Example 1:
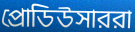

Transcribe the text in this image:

প্রোডিউসাররা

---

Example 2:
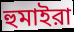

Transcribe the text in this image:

হুমাইরা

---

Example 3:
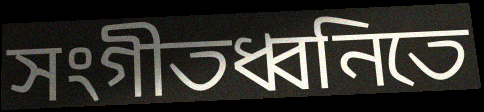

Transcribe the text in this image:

সংগীতধ্বনিতে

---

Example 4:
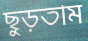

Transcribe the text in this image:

ছুড়তাম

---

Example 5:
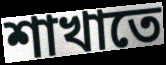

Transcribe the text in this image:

শাখাতে